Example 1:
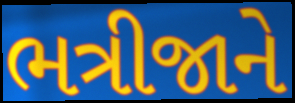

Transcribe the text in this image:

ભત્રીજાને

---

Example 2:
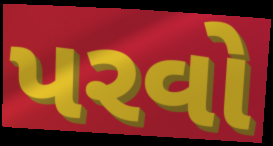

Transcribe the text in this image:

પરવો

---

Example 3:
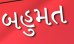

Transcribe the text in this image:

બહુમત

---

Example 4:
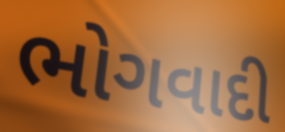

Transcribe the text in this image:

ભોગવાદી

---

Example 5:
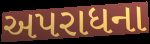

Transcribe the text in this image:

અપરાધના